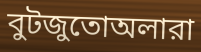
বুটজুতোঅলারা